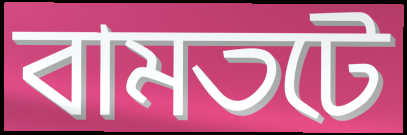
বামতটে